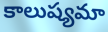
కాలుష్యమా